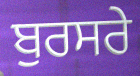
ਬੁਰਸਰੇ